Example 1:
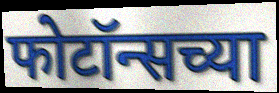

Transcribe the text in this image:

फोटॉन्सच्या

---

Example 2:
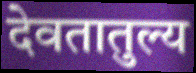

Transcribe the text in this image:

देवतातुल्य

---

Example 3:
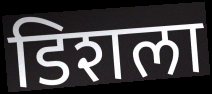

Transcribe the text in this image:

डिशला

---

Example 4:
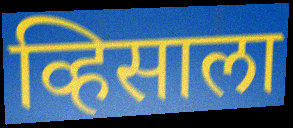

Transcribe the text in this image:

व्हिसाला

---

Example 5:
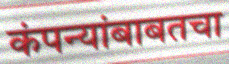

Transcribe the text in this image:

कंपन्यांबाबतचा